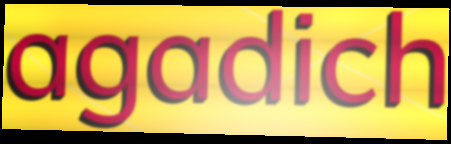
agadich